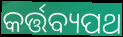
କର୍ତ୍ତବ୍ୟପଥ